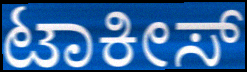
ಟಾಕೀಸ್